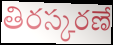
తిరస్కరణే